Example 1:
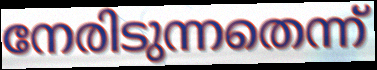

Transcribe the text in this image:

നേരിടുന്നതെന്ന്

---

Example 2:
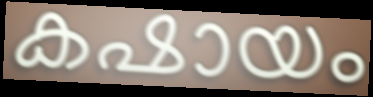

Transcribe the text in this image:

കഷായം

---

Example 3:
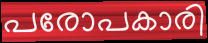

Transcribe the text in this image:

പരോപകാരി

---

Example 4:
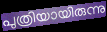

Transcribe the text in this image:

പുത്രിയായിരുന്നു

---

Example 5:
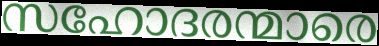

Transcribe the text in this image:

സഹോദരന്മാരെ